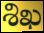
శిఖ